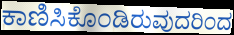
ಕಾಣಿಸಿಕೊಂಡಿರುವುದರಿಂದ